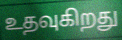
உதவுகிறது